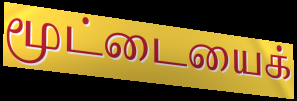
மூட்டையைக்